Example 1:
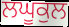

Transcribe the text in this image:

ਲਘੂਕੁਲ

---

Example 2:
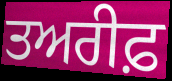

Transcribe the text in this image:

ਤਅਰੀਫ਼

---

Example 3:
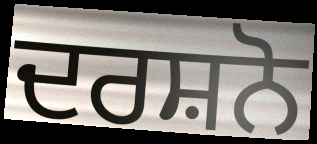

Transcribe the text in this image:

ਦਰਸ਼ਨੋ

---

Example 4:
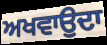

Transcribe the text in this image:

ਅਖਵਾਉਦਾ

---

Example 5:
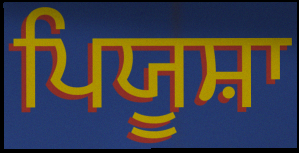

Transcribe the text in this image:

ਪਿਯੂਸ਼ਾ